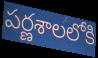
పర్ణశాలలోకి